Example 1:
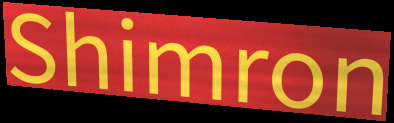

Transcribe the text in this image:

Shimron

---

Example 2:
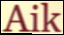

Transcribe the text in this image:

Aik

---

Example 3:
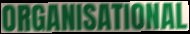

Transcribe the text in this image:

ORGANISATIONAL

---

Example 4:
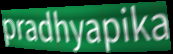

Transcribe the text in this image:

pradhyapika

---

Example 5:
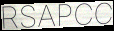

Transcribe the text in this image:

RSAPCC